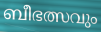
ബീഭത്സവും